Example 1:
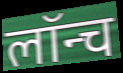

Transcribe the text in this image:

लॉन्‍च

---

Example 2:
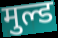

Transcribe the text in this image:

मुल्ड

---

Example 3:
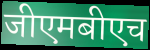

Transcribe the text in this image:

जीएमबीएच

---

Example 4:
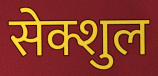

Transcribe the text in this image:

सेक्शुल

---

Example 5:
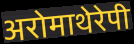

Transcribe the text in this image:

अरोमाथेरेपी